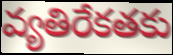
వ్యతిరేకతకు